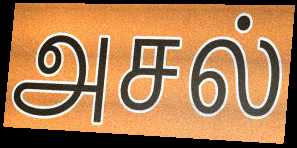
அசல்